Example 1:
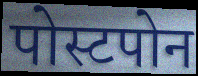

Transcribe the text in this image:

पोस्टपोन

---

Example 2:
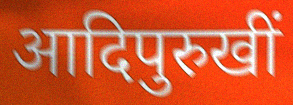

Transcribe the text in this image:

आदिपुरुखीं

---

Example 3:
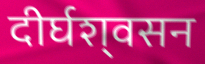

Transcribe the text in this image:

दीर्घश्वसन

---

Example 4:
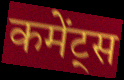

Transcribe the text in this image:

कमेंट्‌स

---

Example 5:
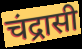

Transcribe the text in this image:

चंद्रासी